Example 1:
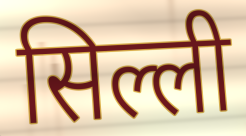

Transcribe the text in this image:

सिल्ली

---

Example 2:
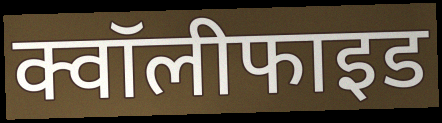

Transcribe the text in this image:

क्वॉलीफाइड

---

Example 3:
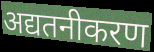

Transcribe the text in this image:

अद्यतनीकरण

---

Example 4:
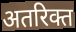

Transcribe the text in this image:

अतरिक्त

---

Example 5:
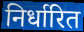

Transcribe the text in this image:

निर्धारित